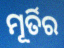
ମୂର୍ତିର